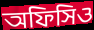
অফিসিও